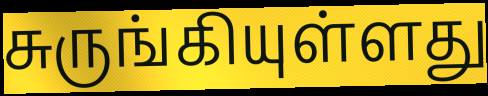
சுருங்கியுள்ளது